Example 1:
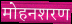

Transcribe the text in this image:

मोहनशरण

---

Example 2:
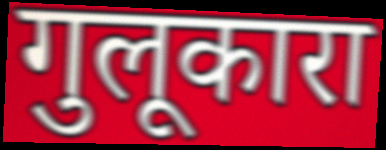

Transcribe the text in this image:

गुलूकारा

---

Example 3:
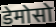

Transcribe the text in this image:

डेमोसो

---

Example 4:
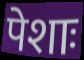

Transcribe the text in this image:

पेशाः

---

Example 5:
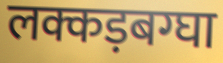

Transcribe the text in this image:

लक्कड़बग्घा